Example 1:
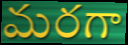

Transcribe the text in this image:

మరగా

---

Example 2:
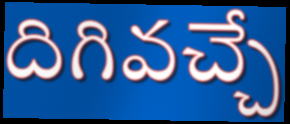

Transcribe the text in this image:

దిగివచ్చే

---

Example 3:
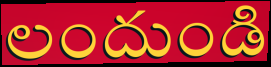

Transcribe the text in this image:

లందుండి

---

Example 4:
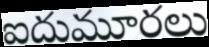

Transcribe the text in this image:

ఐదుమూరలు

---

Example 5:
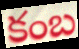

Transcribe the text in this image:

కంబ